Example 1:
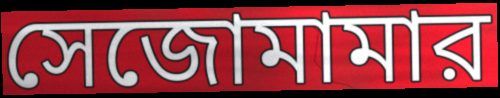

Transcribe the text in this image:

সেজোমামার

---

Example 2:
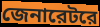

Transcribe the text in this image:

জেনারেটরে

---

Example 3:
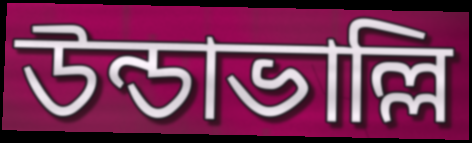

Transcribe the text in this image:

উন্ডাভাল্লি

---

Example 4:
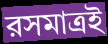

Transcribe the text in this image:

রসমাত্রই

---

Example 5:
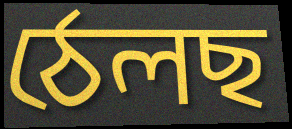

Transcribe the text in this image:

ঠেলছ